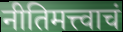
नीतिमत्त्वाचं